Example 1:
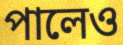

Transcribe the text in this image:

পালেও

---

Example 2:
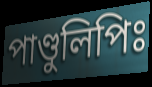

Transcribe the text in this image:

পাণ্ডুলিপিঃ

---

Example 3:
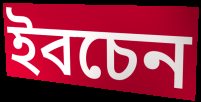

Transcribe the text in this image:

ইবচেন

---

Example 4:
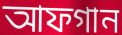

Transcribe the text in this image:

আফগান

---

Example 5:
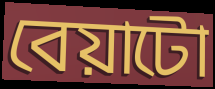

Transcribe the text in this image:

বেয়াটো